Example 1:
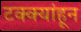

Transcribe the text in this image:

टक्क्यांहून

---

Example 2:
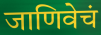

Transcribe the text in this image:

जाणिवेचं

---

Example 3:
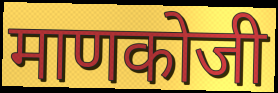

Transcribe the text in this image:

माणकोजी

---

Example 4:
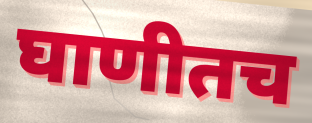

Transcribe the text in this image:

घाणीतच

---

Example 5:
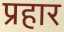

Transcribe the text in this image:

प्रहार